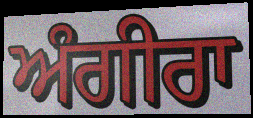
ਅੰਗੀਰਾ